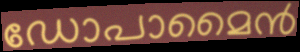
ഡോപാമൈൻ